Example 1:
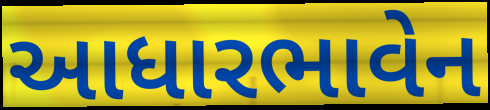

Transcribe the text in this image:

આધારભાવેન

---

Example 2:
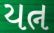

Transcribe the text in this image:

યત્ન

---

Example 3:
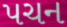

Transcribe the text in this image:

પચન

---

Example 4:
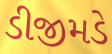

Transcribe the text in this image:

ડીજીમડે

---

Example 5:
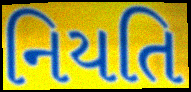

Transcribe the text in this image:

નિયતિ